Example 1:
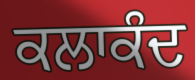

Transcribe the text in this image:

ਕਲਾਕੰਦ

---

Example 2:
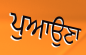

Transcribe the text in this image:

ਪੁਆਉਣਾ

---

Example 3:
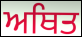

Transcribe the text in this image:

ਅਥਿਤ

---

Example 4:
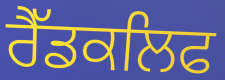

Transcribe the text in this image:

ਰੈੱਡਕਲਿਫ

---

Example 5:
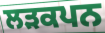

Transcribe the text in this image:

ਲੜਕਪਨ